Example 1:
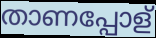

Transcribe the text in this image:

താണപ്പോള്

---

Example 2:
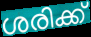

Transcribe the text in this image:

ശരിക്ക്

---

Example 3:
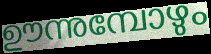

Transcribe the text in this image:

ഊന്നുമ്പോഴും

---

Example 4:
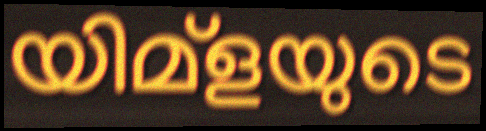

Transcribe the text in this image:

യിമ്ളയുടെ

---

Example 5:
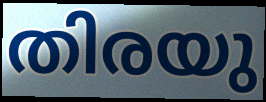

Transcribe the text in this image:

തിരയു